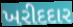
ખરીદદાર